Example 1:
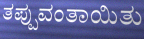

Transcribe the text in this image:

ತಪ್ಪುವಂತಾಯಿತು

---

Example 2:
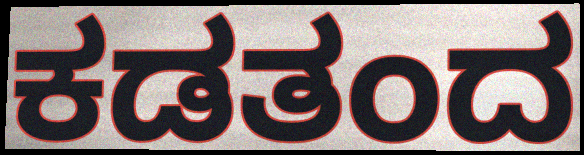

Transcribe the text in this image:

ಕಡತಂದ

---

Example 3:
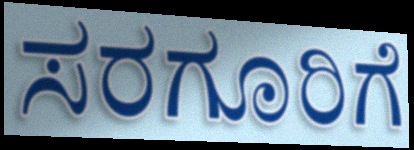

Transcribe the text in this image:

ಸರಗೂರಿಗೆ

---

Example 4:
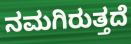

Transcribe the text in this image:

ನಮಗಿರುತ್ತದೆ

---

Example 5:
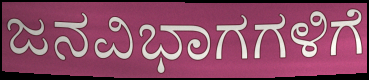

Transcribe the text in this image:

ಜನವಿಭಾಗಗಳಿಗೆ